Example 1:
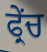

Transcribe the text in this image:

ਫ੍ਰੇੰਚ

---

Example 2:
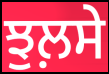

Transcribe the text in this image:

ਝੁਲ਼ਸੇ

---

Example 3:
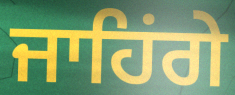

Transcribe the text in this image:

ਜਾਹਿਂਗੇ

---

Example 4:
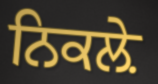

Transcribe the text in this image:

ਨਿਕਲ਼ੇ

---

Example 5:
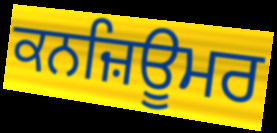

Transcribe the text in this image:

ਕਨਜ਼ਿਊਮਰ